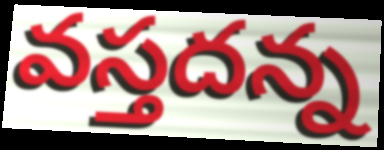
వస్తదన్న